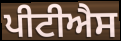
ਪੀਟੀਐਸ